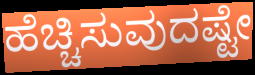
ಹೆಚ್ಚಿಸುವುದಷ್ಟೇ